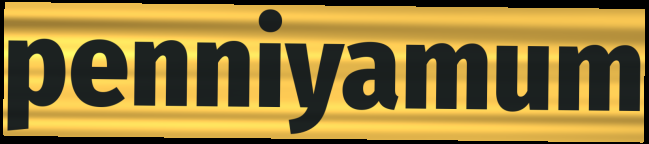
penniyamum